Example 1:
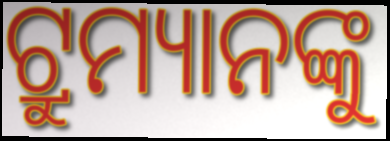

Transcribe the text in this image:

ଟ୍ରୁମ୍ୟାନଙ୍କୁ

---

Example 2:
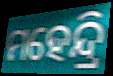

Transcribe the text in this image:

ମହେନ୍ଦ୍ରି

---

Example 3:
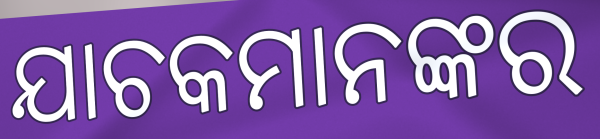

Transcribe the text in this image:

ଯାଚକମାନଙ୍କର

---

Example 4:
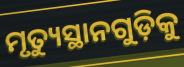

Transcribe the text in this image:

ମୃତ୍ୟୁସ୍ଥାନଗୁଡ଼ିକୁ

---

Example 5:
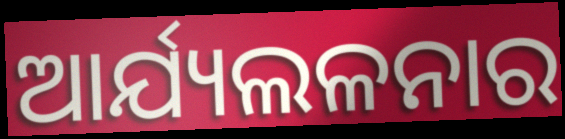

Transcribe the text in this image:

ଆର୍ଯ୍ୟଲଳନାର